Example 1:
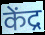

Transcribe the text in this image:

केंद्र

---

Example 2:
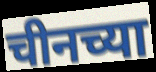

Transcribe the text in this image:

चीनच्या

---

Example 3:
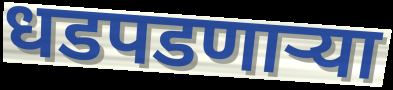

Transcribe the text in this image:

धडपडणाऱ्या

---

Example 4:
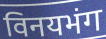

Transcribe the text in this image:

विनयभंग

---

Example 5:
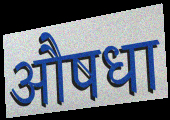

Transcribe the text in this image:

औषधा